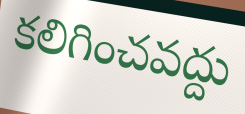
కలిగించవద్దు